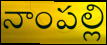
నాంపల్లి